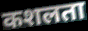
कशलता